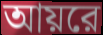
আয়রে